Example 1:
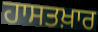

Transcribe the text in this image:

ਹਾਸਤਖ਼ਾਰ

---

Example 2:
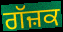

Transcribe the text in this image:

ਗੱਜ਼ਕ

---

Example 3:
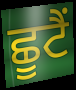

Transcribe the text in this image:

ਛੂਟੈਂ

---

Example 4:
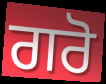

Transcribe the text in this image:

ਗਰੋ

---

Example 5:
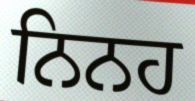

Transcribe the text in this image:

ਨਿਨਹ